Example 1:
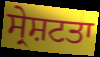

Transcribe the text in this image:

ਸ੍ਰੇਸ਼ਟਤਾ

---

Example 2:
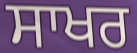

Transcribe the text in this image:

ਸਾਖਰ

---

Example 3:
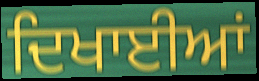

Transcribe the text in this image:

ਦਿਖਾਈਆਂ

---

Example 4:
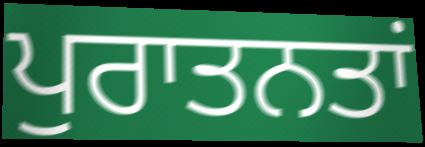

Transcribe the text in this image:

ਪੁਰਾਤਨਤਾਂ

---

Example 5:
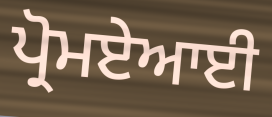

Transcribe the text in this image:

ਪ੍ਰੋਮਏਆਈ